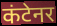
कंटेनर